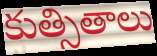
కుత్సితాలు